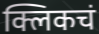
क्लिकचं